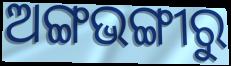
ଅଙ୍ଗଭଙ୍ଗୀରୁ